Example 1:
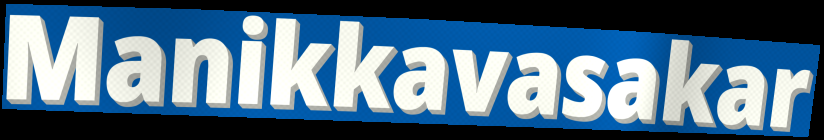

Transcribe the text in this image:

Manikkavasakar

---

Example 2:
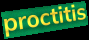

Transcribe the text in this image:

proctitis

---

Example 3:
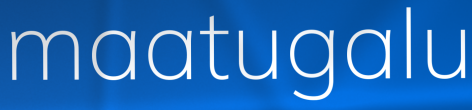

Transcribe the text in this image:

maatugalu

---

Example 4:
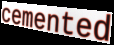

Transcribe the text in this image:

cemented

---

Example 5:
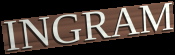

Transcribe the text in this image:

INGRAM